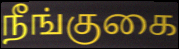
நீங்குகை